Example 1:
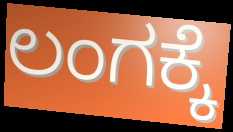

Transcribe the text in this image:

ಲಂಗಕ್ಕೆ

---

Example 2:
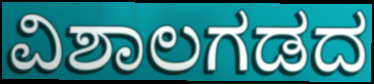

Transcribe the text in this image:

ವಿಶಾಲಗಡದ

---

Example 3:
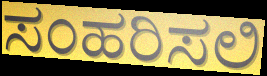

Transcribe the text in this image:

ಸಂಹರಿಸಲಿ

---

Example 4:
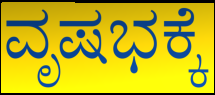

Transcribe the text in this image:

ವೃಷಭಕ್ಕೆ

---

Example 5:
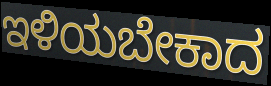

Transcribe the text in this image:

ಇಳಿಯಬೇಕಾದ